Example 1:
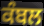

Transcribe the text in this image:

ਕੰਬਲ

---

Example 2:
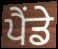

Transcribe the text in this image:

ਪੈਂਡੇ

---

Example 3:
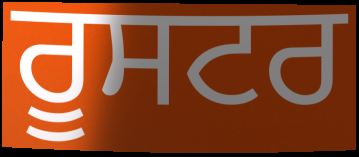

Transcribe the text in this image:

ਰੂਸਟਰ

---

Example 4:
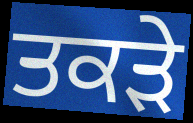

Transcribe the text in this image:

ਤਕੜੇ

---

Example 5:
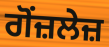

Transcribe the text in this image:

ਗੋਂਜ਼ਲੇਜ਼